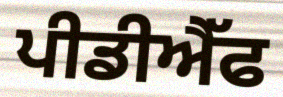
ਪੀਡੀਐੱਫ